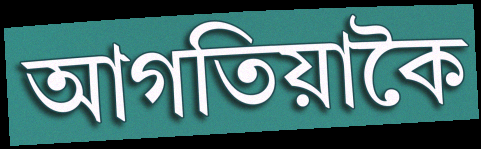
আগতিয়াকৈ